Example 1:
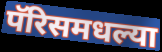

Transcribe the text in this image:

पॅरिसमधल्या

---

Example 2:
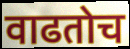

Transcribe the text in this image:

वाढतोच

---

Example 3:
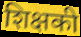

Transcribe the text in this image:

शिक्षकी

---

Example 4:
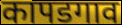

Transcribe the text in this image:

कापडगाव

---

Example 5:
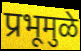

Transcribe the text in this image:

प्रभूमुळे